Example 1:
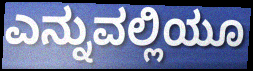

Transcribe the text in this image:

ಎನ್ನುವಲ್ಲಿಯೂ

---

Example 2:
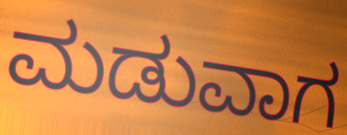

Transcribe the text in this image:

ಮಡುವಾಗ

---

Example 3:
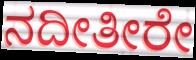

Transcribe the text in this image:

ನದೀತೀರೇ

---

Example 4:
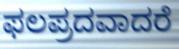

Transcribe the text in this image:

ಫಲಪ್ರದವಾದರೆ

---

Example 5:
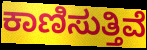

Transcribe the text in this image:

ಕಾಣಿಸುತ್ತಿವೆ